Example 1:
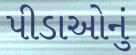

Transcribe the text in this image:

પીડાઓનું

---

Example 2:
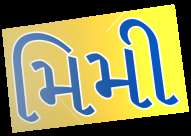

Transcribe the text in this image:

મિમી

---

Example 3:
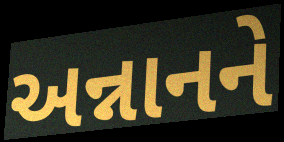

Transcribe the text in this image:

અન્નાનને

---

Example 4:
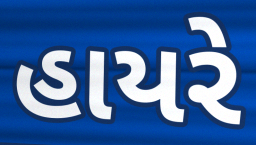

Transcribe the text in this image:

હાયરે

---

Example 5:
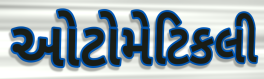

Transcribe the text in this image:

ઓટોમેટિકલી